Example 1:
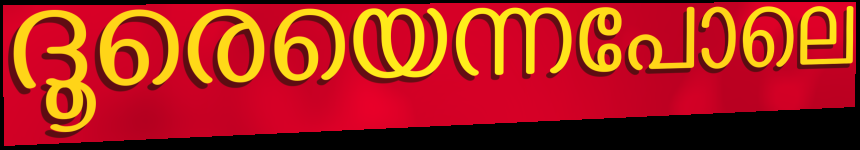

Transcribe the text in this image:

ദൂരെയെന്നപോലെ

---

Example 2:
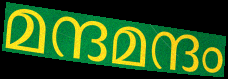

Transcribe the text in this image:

മന്ദമന്ദം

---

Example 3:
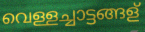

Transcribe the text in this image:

വെള്ളച്ചാട്ടങ്ങള്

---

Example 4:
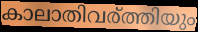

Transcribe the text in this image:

കാലാതിവര്ത്തിയും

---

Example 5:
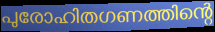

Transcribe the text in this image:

പുരോഹിതഗണത്തിന്റെ